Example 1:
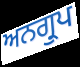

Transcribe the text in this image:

ਅਨਗ੍ਰੁਪ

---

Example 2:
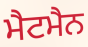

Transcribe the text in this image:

ਮੈਟਮੈਨ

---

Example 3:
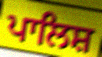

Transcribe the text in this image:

ਪਾਲਿਸ਼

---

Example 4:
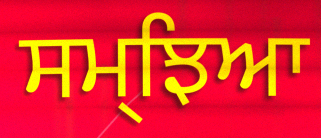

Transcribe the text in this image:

ਸਮ੍ਝਿਆ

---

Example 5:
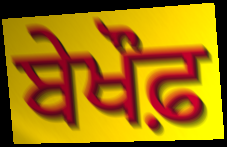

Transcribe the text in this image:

ਬੇਖੌਫ਼